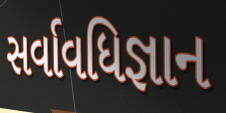
સર્વાવધિજ્ઞાન